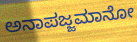
ಅನಾಪಜ್ಜಮಾನೋ